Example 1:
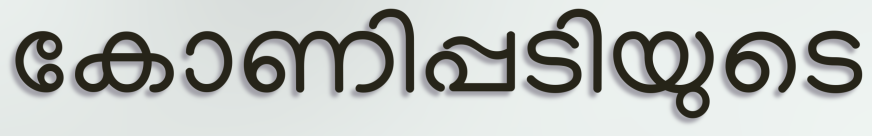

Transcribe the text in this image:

കോണിപ്പടിയുടെ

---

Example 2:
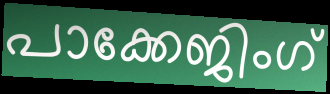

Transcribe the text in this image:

പാക്കേജിംഗ്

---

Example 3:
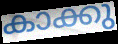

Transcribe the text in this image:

കാക്കു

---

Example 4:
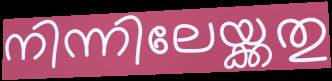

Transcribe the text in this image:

നിന്നിലേയ്ക്കതു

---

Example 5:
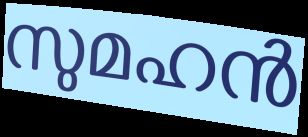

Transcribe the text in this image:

സുമഹൻ